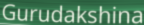
Gurudakshina